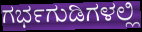
ಗರ್ಭಗುಡಿಗಳಲ್ಲಿ